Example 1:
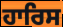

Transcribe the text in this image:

ਹਾਰਿਸ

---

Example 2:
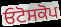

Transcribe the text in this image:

ਓਟੋਸਕੋਪ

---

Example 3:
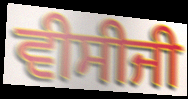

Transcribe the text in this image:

ਵੀਸੀਜੀ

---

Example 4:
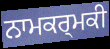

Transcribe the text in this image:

ਨਾਮਕਰ੍ਮਕੀ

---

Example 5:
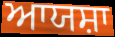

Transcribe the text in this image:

ਆਯਸ਼ਾ